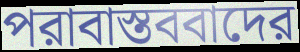
পরাবাস্তববাদের